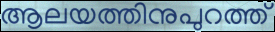
ആലയത്തിനുപുറത്ത്